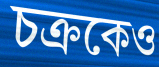
চক্রকেও